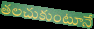
తలచుకుంటూనే